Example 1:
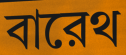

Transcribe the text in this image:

বারেথ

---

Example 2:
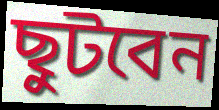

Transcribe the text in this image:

ছুটবেন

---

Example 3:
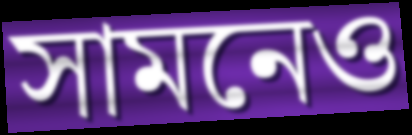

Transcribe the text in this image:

সামনেও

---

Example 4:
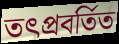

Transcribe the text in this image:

তৎপ্রবর্তিত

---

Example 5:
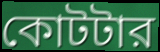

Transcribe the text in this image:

কোটটার